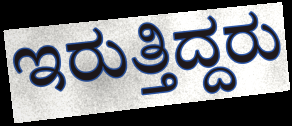
ಇರುತ್ತಿದ್ದರು